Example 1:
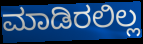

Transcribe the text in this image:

ಮಾಡಿರಲಿಲ್ಲ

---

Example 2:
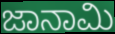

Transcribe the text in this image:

ಜಾನಾಮಿ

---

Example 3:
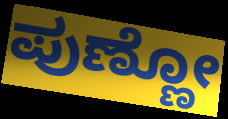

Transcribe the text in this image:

ಪುಣ್ಣೋ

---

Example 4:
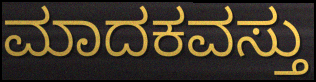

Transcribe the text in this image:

ಮಾದಕವಸ್ತು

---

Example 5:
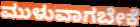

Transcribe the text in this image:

ಮುಳುವಾಗಬೇಕೆ